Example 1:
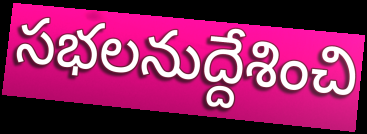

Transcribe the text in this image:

సభలనుద్దేశించి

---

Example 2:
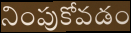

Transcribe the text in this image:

నింపుకోవడం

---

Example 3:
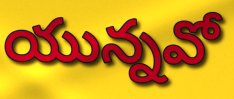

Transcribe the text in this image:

యున్నవో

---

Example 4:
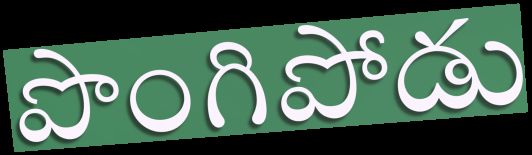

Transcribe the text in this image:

పొంగిపోడు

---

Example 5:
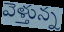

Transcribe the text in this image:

వెళ్తున్న